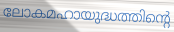
ലോകമഹായുദ്ധത്തിന്റെ